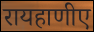
रायहाणीए